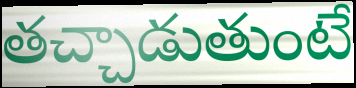
తచ్చాడుతుంటే